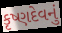
કૃષ્ણદેવનું